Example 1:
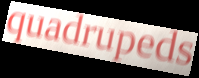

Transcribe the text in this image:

quadrupeds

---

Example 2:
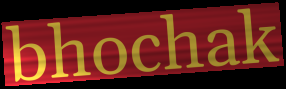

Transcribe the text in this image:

bhochak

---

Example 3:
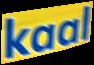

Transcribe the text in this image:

kaal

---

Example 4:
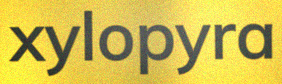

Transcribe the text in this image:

xylopyra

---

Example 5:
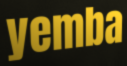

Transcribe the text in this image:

yemba